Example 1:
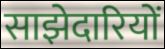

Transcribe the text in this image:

साझेदारियों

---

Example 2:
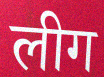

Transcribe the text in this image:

लीग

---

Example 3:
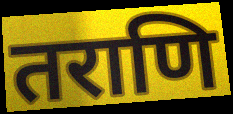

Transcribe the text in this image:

तराणि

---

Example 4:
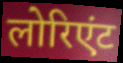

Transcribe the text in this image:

लोरिएंट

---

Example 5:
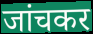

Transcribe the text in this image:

जांचकर